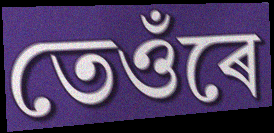
তেওঁৰে